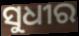
ସୁଧୀର